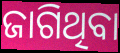
ଜାଗିଥିବା